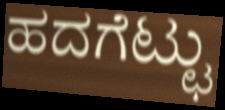
ಹದಗೆಟ್ಟು